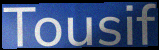
Tousif